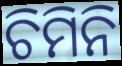
ଚିମିନି